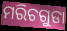
ମରିଚଗୁଡା